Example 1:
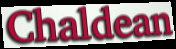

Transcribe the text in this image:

Chaldean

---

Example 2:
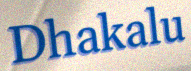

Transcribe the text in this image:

Dhakalu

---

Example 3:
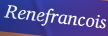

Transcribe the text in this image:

Renefrancois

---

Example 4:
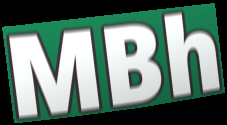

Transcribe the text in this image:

MBh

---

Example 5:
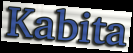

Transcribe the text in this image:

Kabita